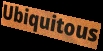
Ubiquitous